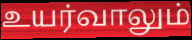
உயர்வாலும்